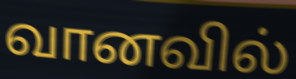
வானவில்